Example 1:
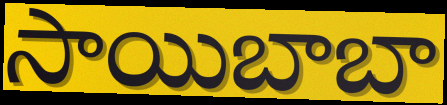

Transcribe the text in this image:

సాయిబాబా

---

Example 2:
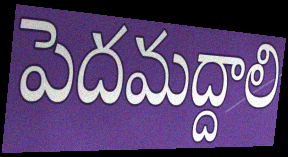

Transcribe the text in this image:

పెదమద్దాలి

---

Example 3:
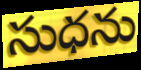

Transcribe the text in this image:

సుధను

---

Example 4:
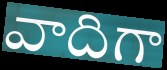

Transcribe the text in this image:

వాదిగా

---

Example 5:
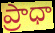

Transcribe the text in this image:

ప్రాధా